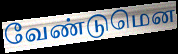
வேண்டுமென